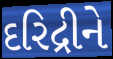
દરિદ્રીને